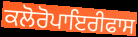
ਕਲੋਰੋਪਾਇਰੀਫਾਸ